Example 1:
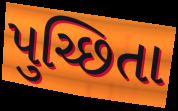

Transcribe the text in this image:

પુચ્છિતા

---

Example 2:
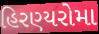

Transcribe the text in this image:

હિરણ્યરોમા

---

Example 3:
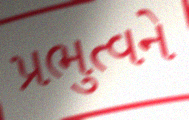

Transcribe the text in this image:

પ્રભુત્વને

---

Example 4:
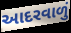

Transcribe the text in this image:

આદરવાળું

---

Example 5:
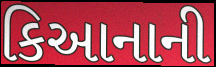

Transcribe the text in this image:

કિઆનાની